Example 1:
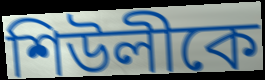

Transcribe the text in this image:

শিউলীকে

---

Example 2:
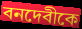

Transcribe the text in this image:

বনদেবীকে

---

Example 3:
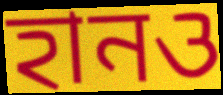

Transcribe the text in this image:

হানও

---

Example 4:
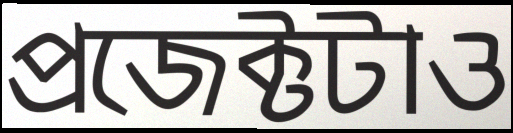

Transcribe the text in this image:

প্রজেক্টটাও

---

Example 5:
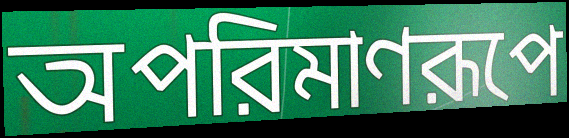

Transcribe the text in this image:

অপরিমাণরূপে